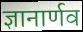
ज्ञानार्णव